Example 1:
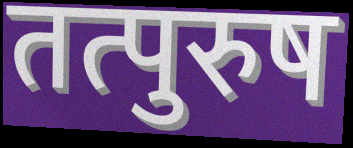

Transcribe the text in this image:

तत्पुरुष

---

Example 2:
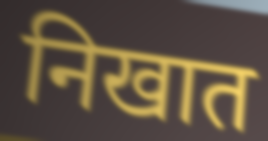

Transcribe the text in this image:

निखात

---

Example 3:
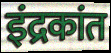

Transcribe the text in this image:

इंद्रकांत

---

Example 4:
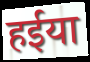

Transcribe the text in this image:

हईया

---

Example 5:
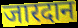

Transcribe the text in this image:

जारदान